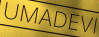
UMADEVI